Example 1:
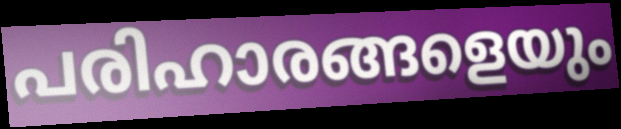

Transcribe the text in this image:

പരിഹാരങ്ങളെയും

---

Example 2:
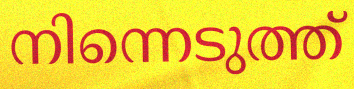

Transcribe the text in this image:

നിന്നെടുത്ത്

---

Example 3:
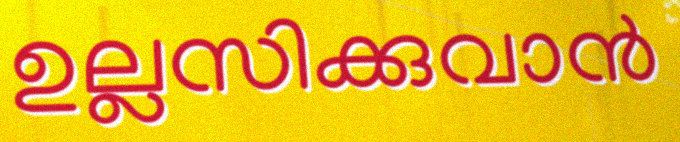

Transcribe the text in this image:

ഉല്ലസിക്കുവാൻ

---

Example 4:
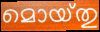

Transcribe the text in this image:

മൊയ്‌തു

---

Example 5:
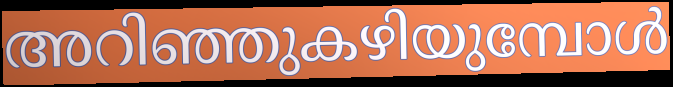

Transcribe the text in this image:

അറിഞ്ഞുകഴിയുമ്പോൾ